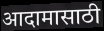
आदामासाठी